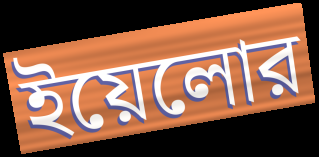
ইয়েলোর